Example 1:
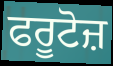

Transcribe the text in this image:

ਫਰੂਟੋਜ਼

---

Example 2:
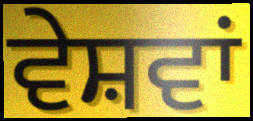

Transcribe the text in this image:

ਵੇਸ਼ਵਾਂ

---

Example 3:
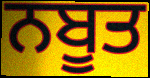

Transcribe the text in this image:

ਨਬੂਤ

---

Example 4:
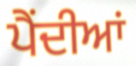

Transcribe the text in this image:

ਪੈਂਦੀਆਂ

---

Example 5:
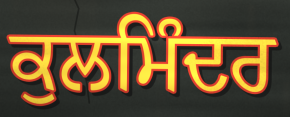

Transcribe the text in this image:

ਕੁਲਮਿੰਦਰ